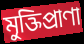
মুক্তিপ্রাণা